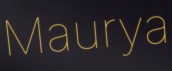
Maurya